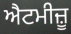
ਐਟਮੀਜ਼ੂ